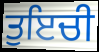
ਤੁਇਚੀ